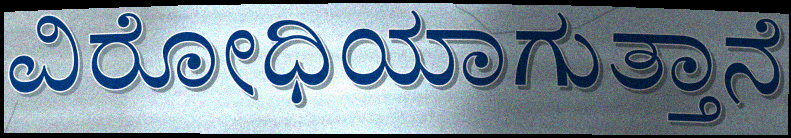
ವಿರೋಧಿಯಾಗುತ್ತಾನೆ